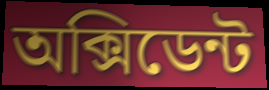
অক্সিডেন্ট